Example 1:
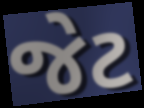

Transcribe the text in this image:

જેટ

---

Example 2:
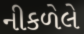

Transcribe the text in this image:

નીકળેલે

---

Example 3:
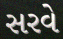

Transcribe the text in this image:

સરવે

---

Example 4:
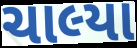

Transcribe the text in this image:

ચાલ્યા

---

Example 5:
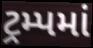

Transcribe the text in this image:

ટ્રમ્પમાં